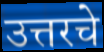
उत्तरचे